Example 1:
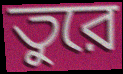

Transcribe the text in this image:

তুরে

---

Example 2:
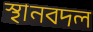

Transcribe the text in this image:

স্থানবদল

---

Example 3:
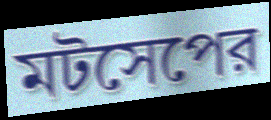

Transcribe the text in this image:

মটসেপের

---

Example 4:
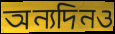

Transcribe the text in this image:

অন্যদিনও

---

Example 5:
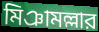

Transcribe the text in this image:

মিঞামল্লার